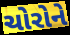
ચોરોને